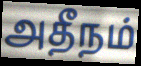
அதீநம்